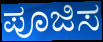
ಪೂಜಿಸ